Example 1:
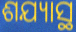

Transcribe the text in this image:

ଶଯ୍ୟାସ୍ଥ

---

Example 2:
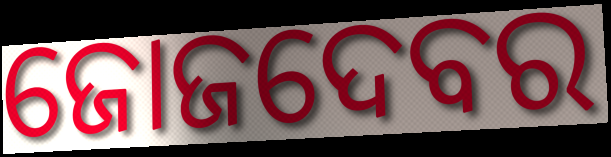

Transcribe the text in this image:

ଜୋଜଦେବର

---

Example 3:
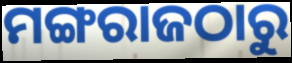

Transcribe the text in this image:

ମଙ୍ଗରାଜଠାରୁ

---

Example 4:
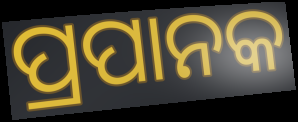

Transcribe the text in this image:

ପ୍ରପାନକ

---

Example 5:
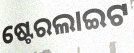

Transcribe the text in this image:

ଷ୍ଟେରଲାଇଟ